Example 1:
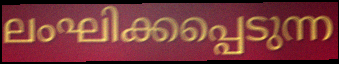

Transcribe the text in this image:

ലംഘിക്കപ്പെടുന്ന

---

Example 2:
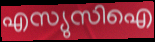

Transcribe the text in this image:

എസ്യുസിഐ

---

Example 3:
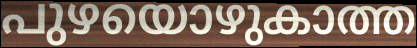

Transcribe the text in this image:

പുഴയൊഴുകാത്ത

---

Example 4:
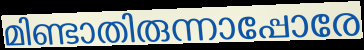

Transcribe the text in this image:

മിണ്ടാതിരുന്നാപ്പോരേ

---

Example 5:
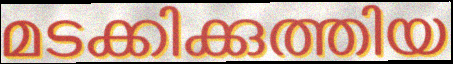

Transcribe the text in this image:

മടക്കിക്കുത്തിയ